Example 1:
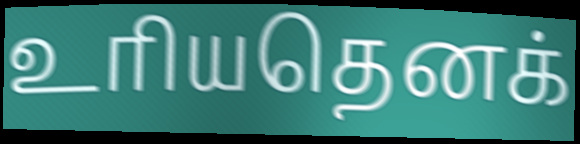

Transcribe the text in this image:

உரியதெனக்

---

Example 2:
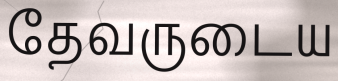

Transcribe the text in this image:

தேவருடைய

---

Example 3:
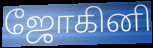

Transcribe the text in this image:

ஜோகினி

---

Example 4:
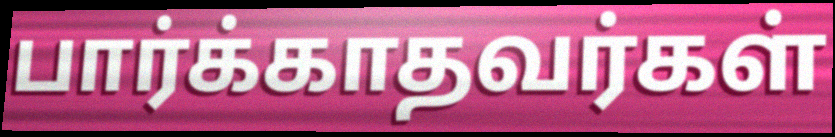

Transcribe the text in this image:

பார்க்காதவர்கள்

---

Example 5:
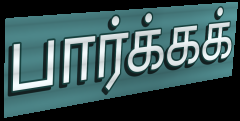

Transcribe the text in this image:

பார்க்கக்